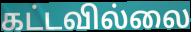
கட்டவில்லை